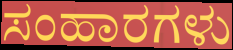
ಸಂಹಾರಗಳು